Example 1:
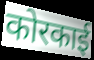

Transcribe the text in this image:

कोरकाई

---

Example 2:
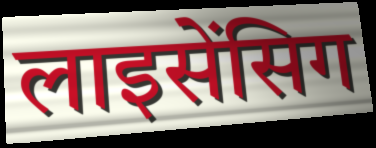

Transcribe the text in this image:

लाइसेंसिग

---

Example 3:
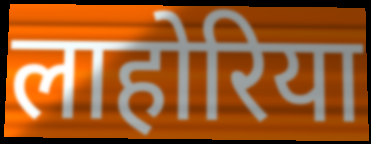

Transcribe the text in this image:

लाहोरिया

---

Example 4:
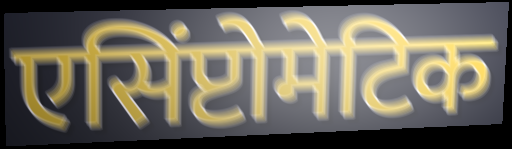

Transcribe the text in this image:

एसिंप्टोमेटिक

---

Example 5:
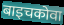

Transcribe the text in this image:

बाइचकोवा